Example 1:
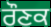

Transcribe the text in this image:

ਰੌਣਕ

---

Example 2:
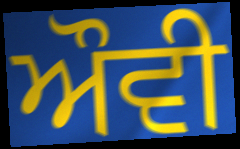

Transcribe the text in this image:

ਔਵੀ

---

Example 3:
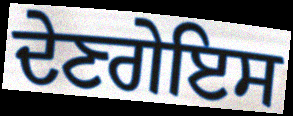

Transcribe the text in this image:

ਦੇਣਗੇਇਸ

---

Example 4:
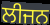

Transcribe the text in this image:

ਲੀਜਨ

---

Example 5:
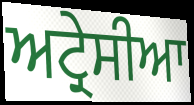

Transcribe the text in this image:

ਅਟ੍ਰੇਸੀਆ